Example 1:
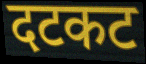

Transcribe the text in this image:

दटकट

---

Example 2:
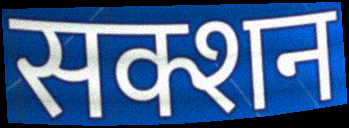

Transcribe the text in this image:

सक्शन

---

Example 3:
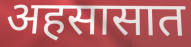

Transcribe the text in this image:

अहसासात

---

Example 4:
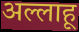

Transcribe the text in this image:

अल्लाहू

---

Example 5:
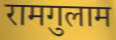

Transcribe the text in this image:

रामगुलाम